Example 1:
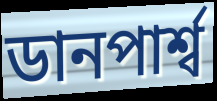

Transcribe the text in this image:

ডানপার্শ্ব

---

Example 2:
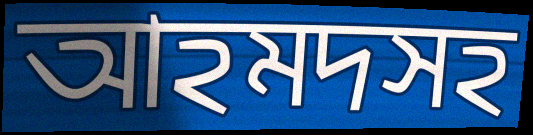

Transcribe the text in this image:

আহমদসহ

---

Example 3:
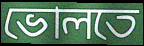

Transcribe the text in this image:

ভোলতে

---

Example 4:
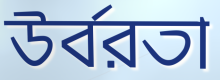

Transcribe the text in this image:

উর্বরতা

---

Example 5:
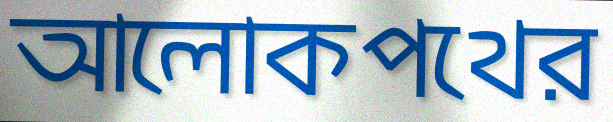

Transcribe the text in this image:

আলোকপথের